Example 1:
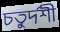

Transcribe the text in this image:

চতুর্দশী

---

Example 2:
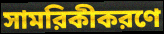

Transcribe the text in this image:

সামরিকীকরণে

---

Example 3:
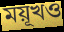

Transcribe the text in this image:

ময়ূখও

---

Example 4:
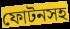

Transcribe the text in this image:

ফোটনসহ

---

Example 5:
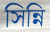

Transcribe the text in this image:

সিন্নি